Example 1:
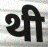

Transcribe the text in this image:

थी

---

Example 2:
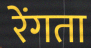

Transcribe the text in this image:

रेंगता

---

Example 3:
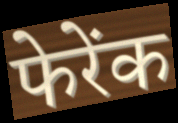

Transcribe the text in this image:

फेरेंक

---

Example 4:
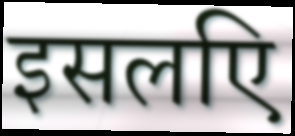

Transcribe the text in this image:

इसलएि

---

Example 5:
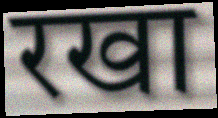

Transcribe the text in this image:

रखा